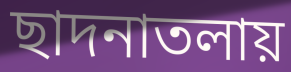
ছাদনাতলায়